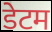
डेटम